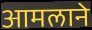
आमलाने